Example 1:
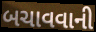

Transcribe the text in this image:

બચાવવાની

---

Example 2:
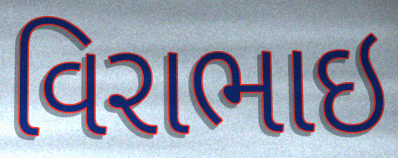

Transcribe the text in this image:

વિરાભાઇ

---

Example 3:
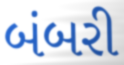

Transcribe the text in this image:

બંબરી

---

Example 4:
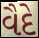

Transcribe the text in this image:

વૈદે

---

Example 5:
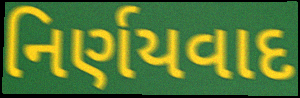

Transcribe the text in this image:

નિર્ણયવાદ